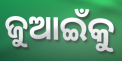
ଜୁଆଇଁକୁ